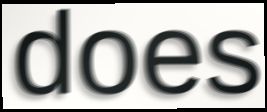
does